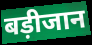
बड़ीजान